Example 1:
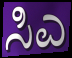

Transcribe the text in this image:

ಸಿಎ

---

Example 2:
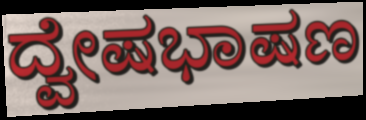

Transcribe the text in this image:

ದ್ವೇಷಭಾಷಣ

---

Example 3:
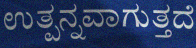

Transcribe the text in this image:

ಉತ್ಪನ್ನವಾಗುತ್ತದೆ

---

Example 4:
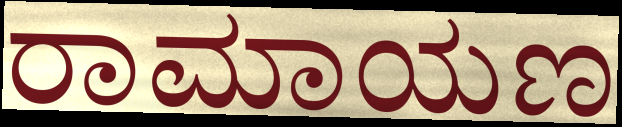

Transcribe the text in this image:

ರಾಮಾಯಣ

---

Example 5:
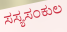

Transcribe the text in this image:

ಸಸ್ಯಸಂಕುಲ